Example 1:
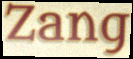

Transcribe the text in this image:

Zang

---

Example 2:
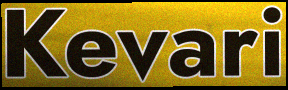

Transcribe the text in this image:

Kevari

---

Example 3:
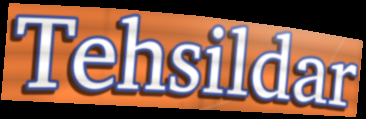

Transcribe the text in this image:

Tehsildar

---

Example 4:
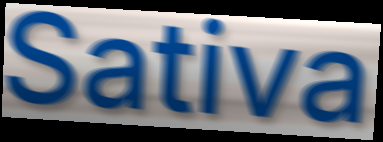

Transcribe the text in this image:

Sativa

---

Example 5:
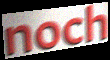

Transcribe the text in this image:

noch